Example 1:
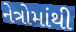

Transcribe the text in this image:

નેત્રોમાંથી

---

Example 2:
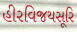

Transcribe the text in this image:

હીરવિજયસૂરિ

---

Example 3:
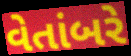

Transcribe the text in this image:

વેતાંબરે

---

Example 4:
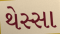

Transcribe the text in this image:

થેસ્સા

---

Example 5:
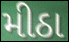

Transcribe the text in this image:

મીઠા